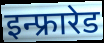
इन्फ्रारेड